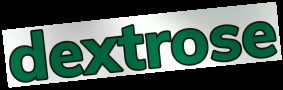
dextrose